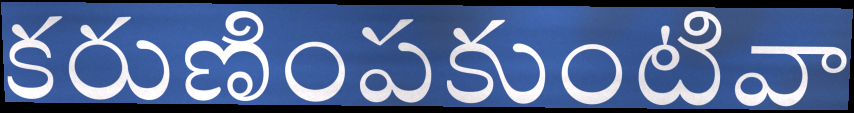
కరుణింపకుంటివా